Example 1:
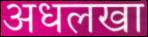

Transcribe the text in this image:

अधलखा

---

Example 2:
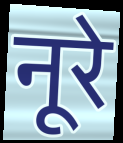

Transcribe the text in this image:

नूरे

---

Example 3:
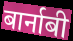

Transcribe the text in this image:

बार्नाबी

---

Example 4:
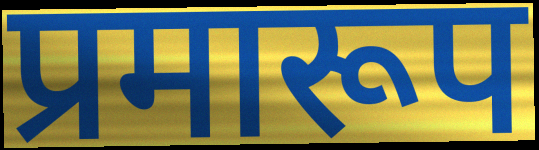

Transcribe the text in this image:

प्रमारूप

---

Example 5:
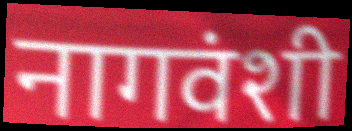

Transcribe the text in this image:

नागवंशी